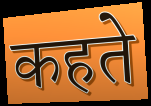
कहते